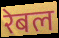
रेबल